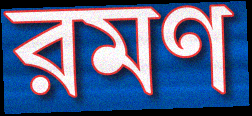
রমণ